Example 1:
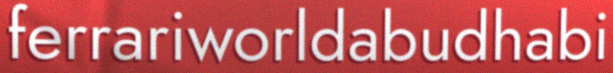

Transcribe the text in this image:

ferrariworldabudhabi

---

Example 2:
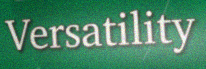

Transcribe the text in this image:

Versatility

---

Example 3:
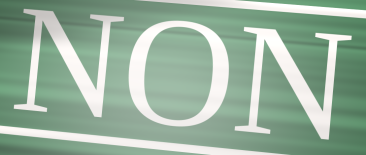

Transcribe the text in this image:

NON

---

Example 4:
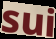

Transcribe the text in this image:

sui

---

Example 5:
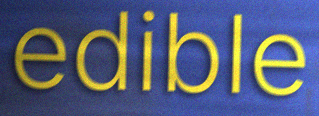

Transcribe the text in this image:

edible